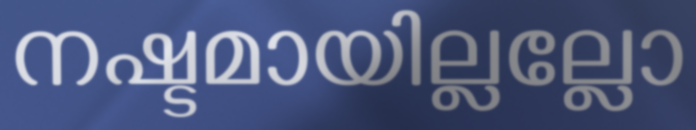
നഷ്ടമായില്ലല്ലോ